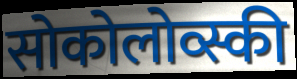
सोकोलोव्स्की